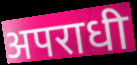
अपराधी